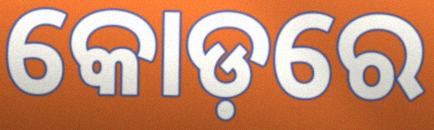
କୋଡ଼ରେ